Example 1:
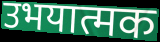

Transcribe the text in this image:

उभयात्मक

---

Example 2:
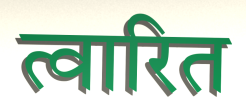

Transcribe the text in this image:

त्वारित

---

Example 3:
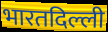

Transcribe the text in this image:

भारतदिल्ली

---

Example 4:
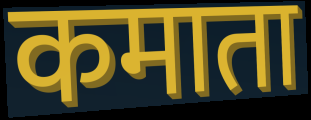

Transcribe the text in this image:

कमाता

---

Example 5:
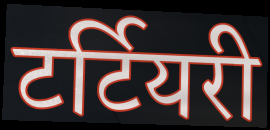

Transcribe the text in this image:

टर्टियरी